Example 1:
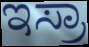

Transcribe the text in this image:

ಇಸ್ರಾ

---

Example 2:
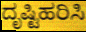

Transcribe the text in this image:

ದೃಷ್ಟಿಹರಿಸಿ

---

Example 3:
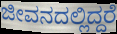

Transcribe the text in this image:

ಜೀವನದಲ್ಲಿದ್ದರೆ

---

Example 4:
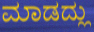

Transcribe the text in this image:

ಮಾಡದ್ಲು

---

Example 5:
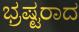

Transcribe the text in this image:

ಭ್ರಷ್ಟರಾದ